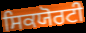
ਸਿਕਯੋਰਟੀ